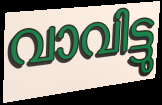
വാവിട്ടു